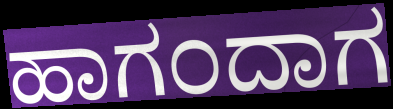
ಹಾಗಂದಾಗ